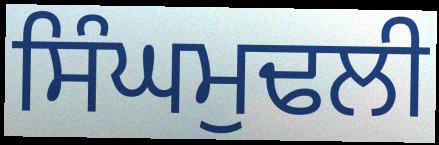
ਸਿੰਘਮੁਢਲੀ